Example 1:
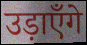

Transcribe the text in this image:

उड़ाएँगे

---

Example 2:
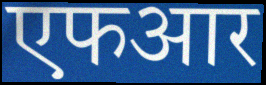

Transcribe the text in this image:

एफआर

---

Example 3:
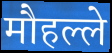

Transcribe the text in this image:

मौहल्ले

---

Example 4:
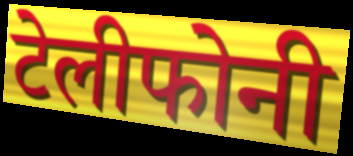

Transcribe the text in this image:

टेलीफोनी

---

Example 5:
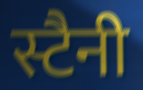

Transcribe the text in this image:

स्टैनी